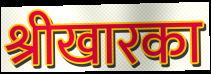
श्रीखारका